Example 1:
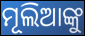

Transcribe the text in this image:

ମୂଲିଆଙ୍କୁ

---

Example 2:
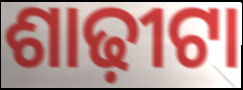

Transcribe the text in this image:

ଶାଢ଼ୀଟା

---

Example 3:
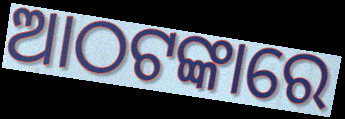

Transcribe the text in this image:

ଆଠଟଙ୍କାରେ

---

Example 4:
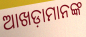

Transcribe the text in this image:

ଆଖଡ଼ାମାନଙ୍କ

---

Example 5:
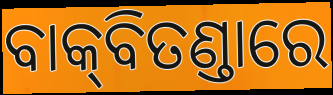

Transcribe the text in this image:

ବାକ୍‌ବିତଣ୍ଡାରେ